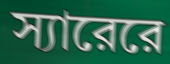
স্যারেরে